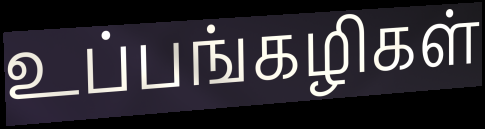
உப்பங்கழிகள்